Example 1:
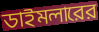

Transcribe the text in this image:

ডাইমলারের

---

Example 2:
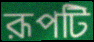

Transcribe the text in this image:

রূপটি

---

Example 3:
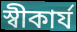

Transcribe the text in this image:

স্বীকার্য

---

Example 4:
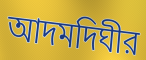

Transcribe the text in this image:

আদমদিঘীর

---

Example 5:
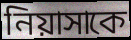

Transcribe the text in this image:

নিয়াসাকে